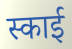
स्काई